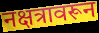
नक्षत्रावरून